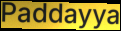
Paddayya